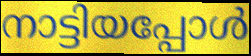
നാട്ടിയപ്പോൾ